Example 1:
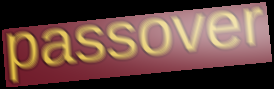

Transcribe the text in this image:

passover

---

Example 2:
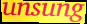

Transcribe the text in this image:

unsung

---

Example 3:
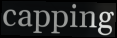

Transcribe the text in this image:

capping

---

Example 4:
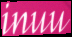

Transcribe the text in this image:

inuu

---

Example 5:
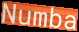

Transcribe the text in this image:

Numba